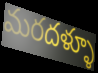
మరదళ్ళూ